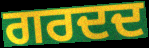
ਗਰਦਦ